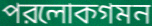
পরলোকগমন